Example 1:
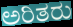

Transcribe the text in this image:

ಅರಿತರು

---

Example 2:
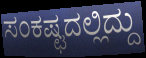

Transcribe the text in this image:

ಸಂಕಷ್ಟದಲ್ಲಿದ್ದು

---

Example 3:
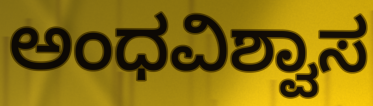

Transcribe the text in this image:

ಅಂಧವಿಶ್ವಾಸ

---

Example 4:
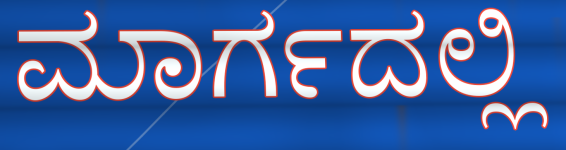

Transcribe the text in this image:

ಮಾರ್ಗದಲ್ಲಿ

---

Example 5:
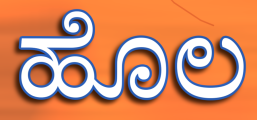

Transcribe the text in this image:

ಹೊಲ